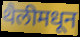
थैलीमधून